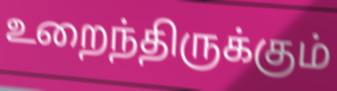
உறைந்திருக்கும்